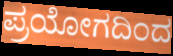
ಪ್ರಯೋಗದಿಂದ